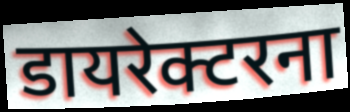
डायरेक्टरना